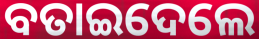
ବତାଇଦେଲେ